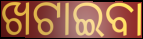
ଖଟାଇବା